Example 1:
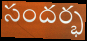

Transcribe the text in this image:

సందర్భ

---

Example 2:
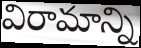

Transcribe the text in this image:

విరామాన్ని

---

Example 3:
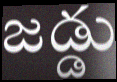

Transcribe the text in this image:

జడ్డు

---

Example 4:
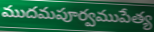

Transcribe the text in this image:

ముదమపూర్వముపేత్య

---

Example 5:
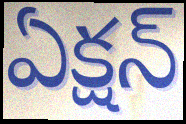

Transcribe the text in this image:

ఏక్షన్